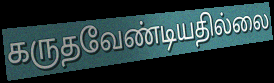
கருதவேண்டியதில்லை